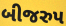
બીજરુપ